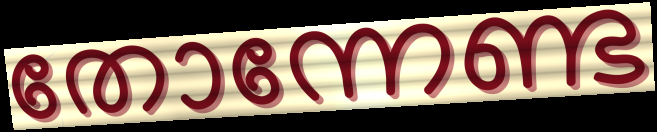
തോന്നേണ്ട